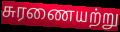
சுரணையற்று